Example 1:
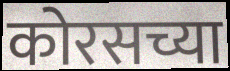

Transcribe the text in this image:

कोरसच्या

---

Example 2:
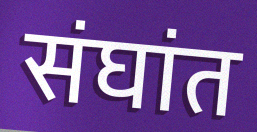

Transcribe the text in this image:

संघांत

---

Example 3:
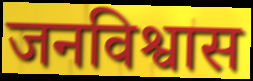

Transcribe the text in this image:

जनविश्वास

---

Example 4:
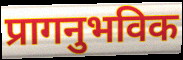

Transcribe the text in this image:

प्रागनुभविक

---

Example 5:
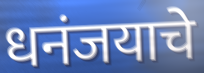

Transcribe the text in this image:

धनंजयाचे